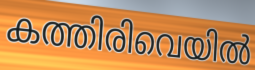
കത്തിരിവെയിൽ